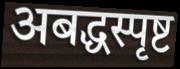
अबद्धस्पृष्ट